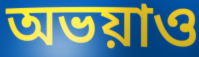
অভয়াও